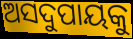
ଅସଦୁପାୟକୁ